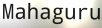
Mahaguru